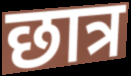
छात्र